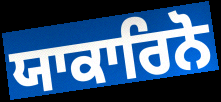
ਯਾਕਾਰਿਨੋ